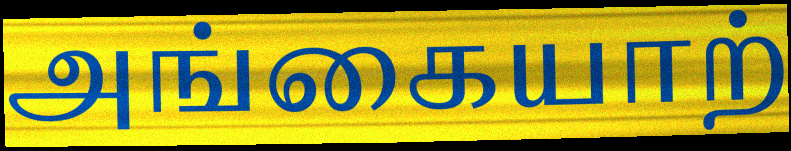
அங்கையாற்